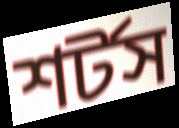
শর্টস